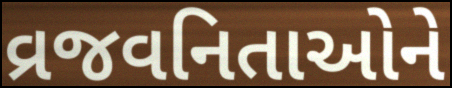
વ્રજવનિતાઓને